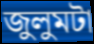
জুলুমটা